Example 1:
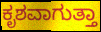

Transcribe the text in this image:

ಕೃಶವಾಗುತ್ತಾ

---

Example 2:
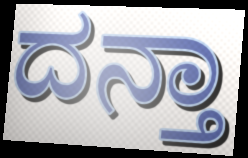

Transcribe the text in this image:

ದನ್ತಾ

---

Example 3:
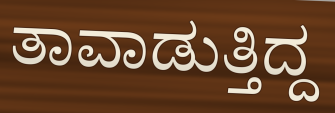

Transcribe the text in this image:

ತಾವಾಡುತ್ತಿದ್ದ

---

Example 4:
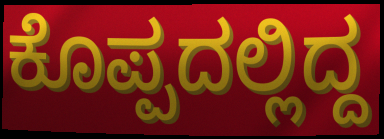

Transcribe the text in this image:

ಕೊಪ್ಪದಲ್ಲಿದ್ದ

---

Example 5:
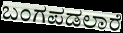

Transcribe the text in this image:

ಬಂಗಪಡಲಾರೆ